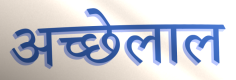
अच्छेलाल